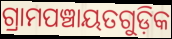
ଗ୍ରାମପଞ୍ଚାୟତଗୁଡ଼ିକ